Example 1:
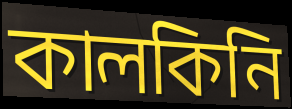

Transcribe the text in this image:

কালকিনি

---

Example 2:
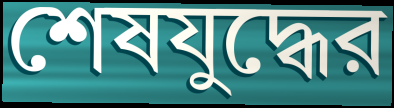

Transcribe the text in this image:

শেষযুদ্ধের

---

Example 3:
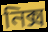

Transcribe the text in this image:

নিক্স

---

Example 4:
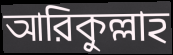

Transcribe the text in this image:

আরিকুল্লাহ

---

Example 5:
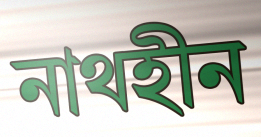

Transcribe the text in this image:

নাথহীন